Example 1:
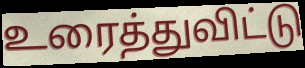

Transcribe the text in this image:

உரைத்துவிட்டு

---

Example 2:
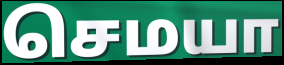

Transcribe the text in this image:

செமயா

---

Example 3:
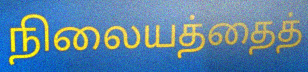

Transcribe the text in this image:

நிலையத்தைத்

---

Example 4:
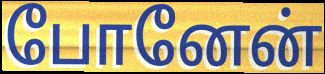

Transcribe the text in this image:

போனேன்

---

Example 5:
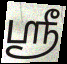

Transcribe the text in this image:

ஸ்ரீ